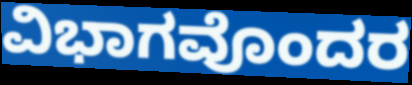
ವಿಭಾಗವೊಂದರ